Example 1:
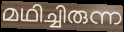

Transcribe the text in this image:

മഥിച്ചിരുന്ന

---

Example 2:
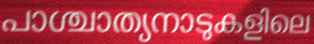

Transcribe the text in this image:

പാശ്ചാത്യനാടുകളിലെ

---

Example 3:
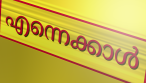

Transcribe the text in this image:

എന്നെക്കാൾ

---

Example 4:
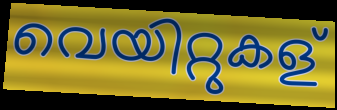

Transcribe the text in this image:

വെയിറ്റുകള്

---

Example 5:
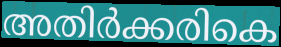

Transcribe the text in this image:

അതിർക്കരികെ